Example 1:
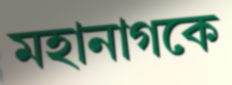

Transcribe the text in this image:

মহানাগকে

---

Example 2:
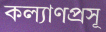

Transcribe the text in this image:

কল্যাণপ্রসূ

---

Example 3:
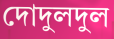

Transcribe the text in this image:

দোদুলদুল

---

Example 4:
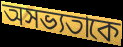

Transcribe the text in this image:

অসভ্যতাকে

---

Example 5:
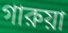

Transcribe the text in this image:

গারুয়া